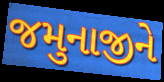
જમુનાજીને